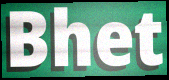
Bhet